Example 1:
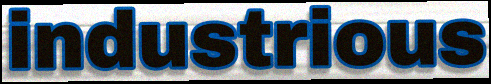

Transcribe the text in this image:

industrious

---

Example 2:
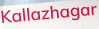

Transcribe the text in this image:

Kallazhagar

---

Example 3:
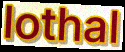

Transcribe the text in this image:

lothal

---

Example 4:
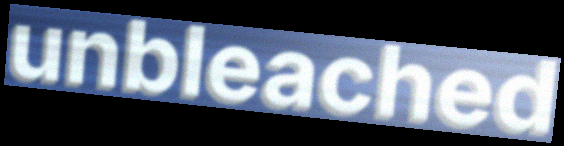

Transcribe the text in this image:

unbleached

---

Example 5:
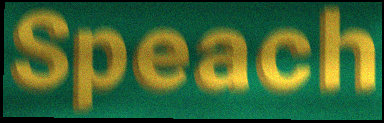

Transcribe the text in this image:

Speach